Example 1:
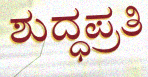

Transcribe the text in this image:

ಶುದ್ಧಪ್ರತಿ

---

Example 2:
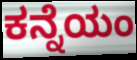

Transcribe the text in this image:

ಕನ್ನೆಯಂ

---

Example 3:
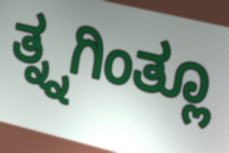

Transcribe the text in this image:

ತ್ನ್ನಗಿಂತ್ಲೂ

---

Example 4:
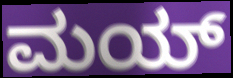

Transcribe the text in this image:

ಮಯ್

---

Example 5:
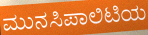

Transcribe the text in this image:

ಮುನಸಿಪಾಲಿಟಿಯ